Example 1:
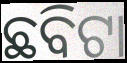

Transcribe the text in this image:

ଛବିଟା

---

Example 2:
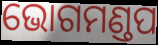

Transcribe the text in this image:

ଭୋଗମଣ୍ଡପ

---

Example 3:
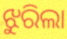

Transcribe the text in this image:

ଝୁରିଲା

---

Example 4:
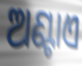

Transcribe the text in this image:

ଅଣ୍ଟାଏ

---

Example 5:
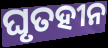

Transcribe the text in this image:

ଘୃତହୀନ